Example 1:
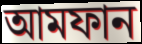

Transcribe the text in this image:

আমফান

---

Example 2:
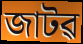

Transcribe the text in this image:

জাটৱ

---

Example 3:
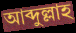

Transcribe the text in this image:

আব্দুল্লাহ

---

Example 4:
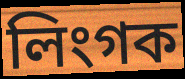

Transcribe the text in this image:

লিংগক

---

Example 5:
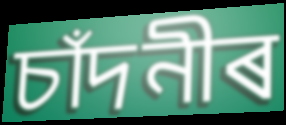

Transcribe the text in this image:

চাঁদনীৰ